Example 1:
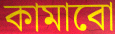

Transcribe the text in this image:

কামাবো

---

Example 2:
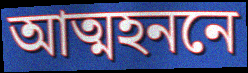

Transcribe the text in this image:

আত্মহননে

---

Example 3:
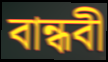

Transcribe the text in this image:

বান্ধবী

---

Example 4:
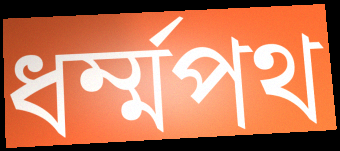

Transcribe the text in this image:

ধর্ম্মপথ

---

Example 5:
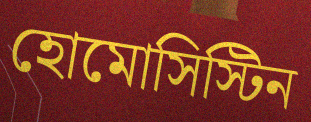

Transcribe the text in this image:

হোমোসিস্টিন